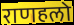
राणहलो